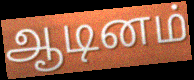
ஆடினம்